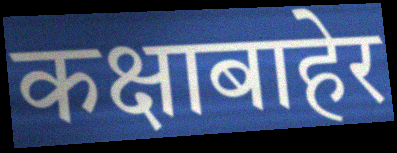
कक्षाबाहेर